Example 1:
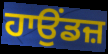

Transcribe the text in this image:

ਹਾਉਂਡਜ਼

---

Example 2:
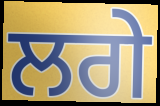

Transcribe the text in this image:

ਲਗੇ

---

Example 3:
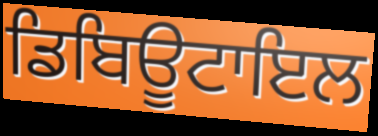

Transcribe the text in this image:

ਡਿਬਿਊਟਾਇਲ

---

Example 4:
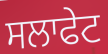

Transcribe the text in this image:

ਸਲਾਫੇਟ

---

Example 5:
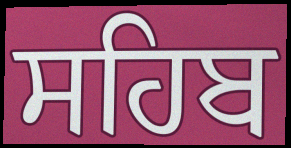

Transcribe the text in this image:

ਸਹਿਬ